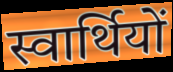
स्वार्थियों